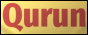
Qurun